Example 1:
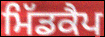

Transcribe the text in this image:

ਮਿੱਡਕੈਪ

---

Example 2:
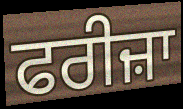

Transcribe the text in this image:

ਫਰੀਜ਼ਾ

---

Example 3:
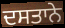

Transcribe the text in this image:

ਦਸਤਾਨੇ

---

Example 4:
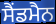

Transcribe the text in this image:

ਸੈਂਡਮੈਨ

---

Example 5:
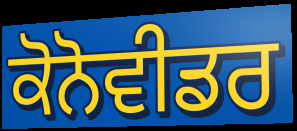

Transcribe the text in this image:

ਕੋਨੋਵੀਡਰ